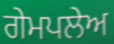
ਗੇਮਪਲੇਅ